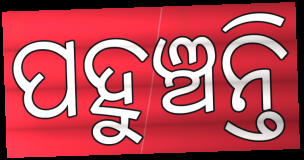
ପହୁଞ୍ଚନ୍ତି